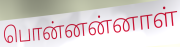
பொன்னன்னாள்